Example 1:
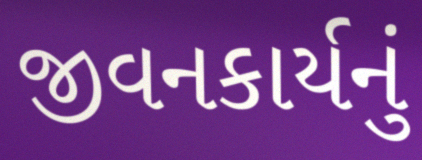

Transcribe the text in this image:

જીવનકાર્યનું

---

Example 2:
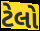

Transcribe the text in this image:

ટેલો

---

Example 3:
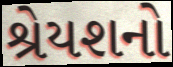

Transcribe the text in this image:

શ્રેયશનો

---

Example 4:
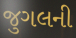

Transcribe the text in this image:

જુગલની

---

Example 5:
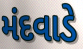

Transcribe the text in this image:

મંદવાડે